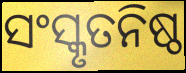
ସଂସ୍କୃତନିଷ୍ଠ